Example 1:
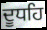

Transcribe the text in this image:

ਦੂਧਹਿ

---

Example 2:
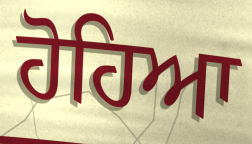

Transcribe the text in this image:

ਹੋਹਿਆ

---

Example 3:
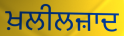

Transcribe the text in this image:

ਖ਼ਲੀਲਜ਼ਾਦ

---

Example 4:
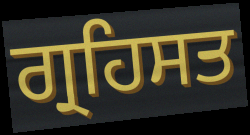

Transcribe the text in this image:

ਗ੍ਰਹਿਸਤ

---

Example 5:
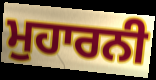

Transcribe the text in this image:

ਮੁਹਾਰਨੀ